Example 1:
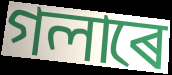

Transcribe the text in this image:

গলাৰে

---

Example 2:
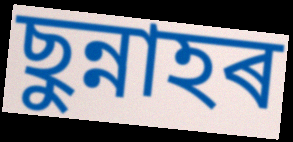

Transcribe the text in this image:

ছুন্নাহৰ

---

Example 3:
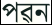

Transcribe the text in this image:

পৱন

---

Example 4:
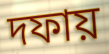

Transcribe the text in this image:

দফায়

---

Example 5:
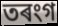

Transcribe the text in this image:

তৰংগ